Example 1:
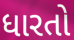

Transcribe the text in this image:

ધારતો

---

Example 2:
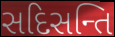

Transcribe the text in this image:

સદિસન્તિ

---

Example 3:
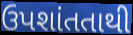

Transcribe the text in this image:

ઉપશાંતતાથી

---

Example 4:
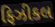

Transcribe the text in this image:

ફિઝીકલ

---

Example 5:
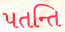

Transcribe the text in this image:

પતન્તિ